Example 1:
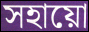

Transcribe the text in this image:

সহায়ো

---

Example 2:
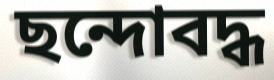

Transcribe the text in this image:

ছন্দোবদ্ধ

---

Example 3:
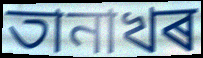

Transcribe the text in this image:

তানাখৰ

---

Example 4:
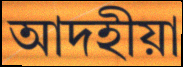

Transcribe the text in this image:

আদহীয়া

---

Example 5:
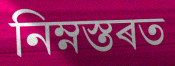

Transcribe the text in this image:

নিম্নস্তৰত